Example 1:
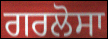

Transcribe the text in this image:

ਗਰਲੋਸਾ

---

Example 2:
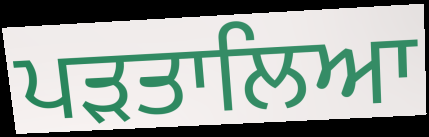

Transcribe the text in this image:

ਪੜਤਾਲਿਆ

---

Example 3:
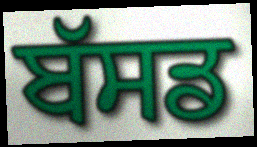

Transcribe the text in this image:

ਬੱਸਡ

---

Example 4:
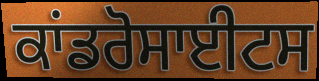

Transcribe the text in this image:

ਕਾਂਡਰੋਸਾਈਟਸ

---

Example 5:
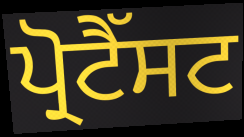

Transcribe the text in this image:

ਪ੍ਰੋਟੈੱਸਟ